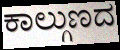
ಕಾಲ್ಗುಣದ